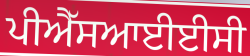
ਪੀਐੱਸਆਈਈਸੀ